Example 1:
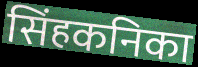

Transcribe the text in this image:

सिंहकनिका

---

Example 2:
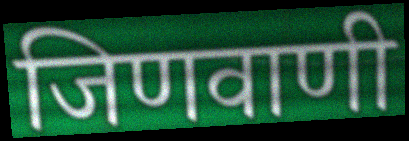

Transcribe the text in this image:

जिणवाणी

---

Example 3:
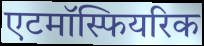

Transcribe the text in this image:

एटमॉस्फियरिक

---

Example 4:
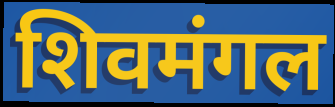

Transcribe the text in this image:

शिवमंगल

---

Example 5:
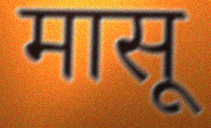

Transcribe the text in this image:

मासू